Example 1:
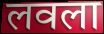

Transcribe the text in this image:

लवला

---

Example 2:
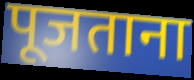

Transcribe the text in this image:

पूजताना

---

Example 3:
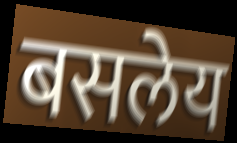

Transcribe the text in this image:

बसलेय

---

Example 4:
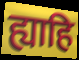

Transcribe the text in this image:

ह्याहि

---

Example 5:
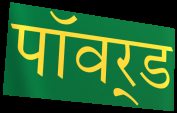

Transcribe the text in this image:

पॉवर्ड